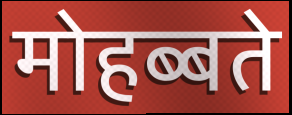
मोहब्बते